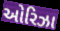
ઓરિઝા